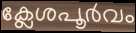
ക്ലേശപൂർവം